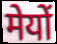
मेयों